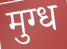
मुग्ध